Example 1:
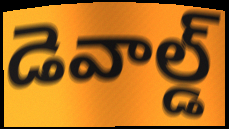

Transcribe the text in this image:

డెవాల్డ్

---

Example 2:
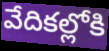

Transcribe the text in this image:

వేదికల్లోకి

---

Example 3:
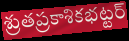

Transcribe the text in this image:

శ్రుతప్రకాశికభట్టర్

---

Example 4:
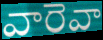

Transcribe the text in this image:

వారెవా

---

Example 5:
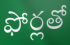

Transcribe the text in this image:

ఫోర్లతో